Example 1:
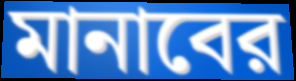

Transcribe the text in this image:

মানাবের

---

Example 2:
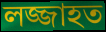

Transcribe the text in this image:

লজ্জাহত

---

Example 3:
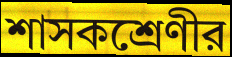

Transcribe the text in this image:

শাসকশ্রেণীর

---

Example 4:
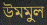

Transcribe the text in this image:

উমমুল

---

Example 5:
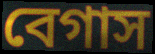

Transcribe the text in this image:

বেগাস